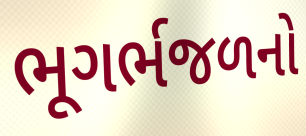
ભૂગર્ભજળનો